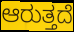
ಆರುತ್ತದೆ